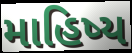
માહિષ્ય